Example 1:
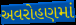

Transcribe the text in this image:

અવરોહણમાં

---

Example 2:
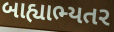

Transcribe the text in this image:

બાહ્યાભ્યતર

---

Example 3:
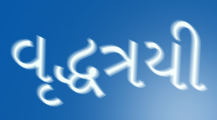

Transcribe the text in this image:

વૃદ્ધત્રયી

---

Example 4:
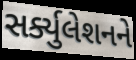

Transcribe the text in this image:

સર્ક્યુલેશનને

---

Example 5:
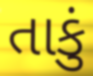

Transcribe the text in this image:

તાકું